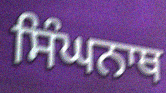
ਸਿੰਘਨਾਥ